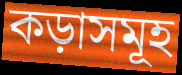
কড়াসমূহ